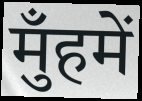
मुँहमें